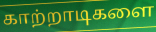
காற்றாடிகளை